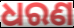
ଧରଣ